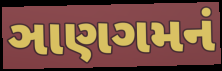
ઞાણગમનં